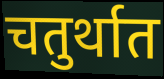
चतुर्थात